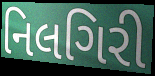
નિલગિરી